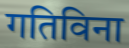
गतिविना